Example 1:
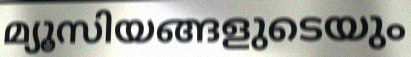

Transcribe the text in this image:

മ്യൂസിയങ്ങളുടെയും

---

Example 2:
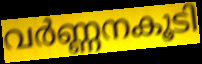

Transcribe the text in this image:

വർണ്ണനകൂടി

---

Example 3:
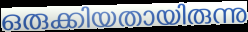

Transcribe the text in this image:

ഒരുക്കിയതായിരുന്നു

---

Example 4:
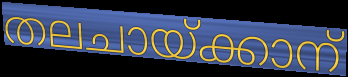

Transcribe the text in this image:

തലചായ്ക്കാന്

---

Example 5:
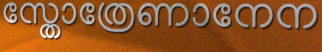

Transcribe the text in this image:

സ്തോത്രേണാനേന